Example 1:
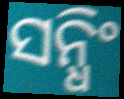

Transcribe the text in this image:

ସନ୍ଧିଂ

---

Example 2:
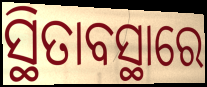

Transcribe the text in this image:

ସ୍ଥିତାବସ୍ଥାରେ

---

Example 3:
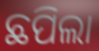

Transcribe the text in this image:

ଛପିଲା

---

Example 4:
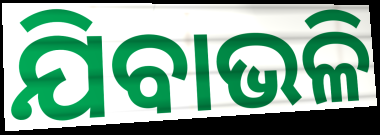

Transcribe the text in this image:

ଯିବାଭଳି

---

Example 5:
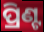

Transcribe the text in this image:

ପ୍ରିଣ୍ଟ